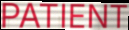
PATIENT